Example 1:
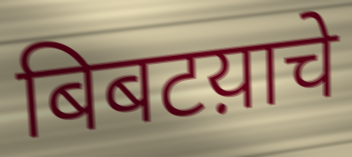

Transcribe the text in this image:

बिबटय़ाचे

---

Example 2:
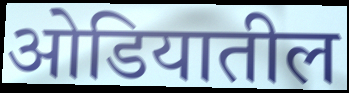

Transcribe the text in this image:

ओडियातील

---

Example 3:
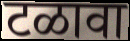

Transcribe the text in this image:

टळावा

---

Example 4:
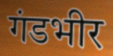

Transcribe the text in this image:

गंडभीर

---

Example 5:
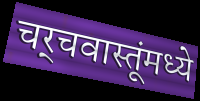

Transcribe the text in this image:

चर्चवास्तूंमध्ये